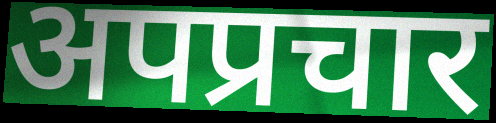
अपप्रचार